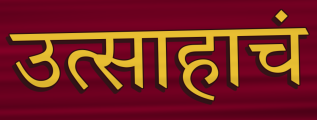
उत्साहाचं